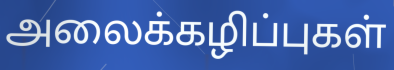
அலைக்கழிப்புகள்